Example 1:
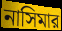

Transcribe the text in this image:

নাসিমার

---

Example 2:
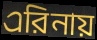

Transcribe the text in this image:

এরিনায়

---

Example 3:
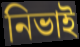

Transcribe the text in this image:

নিভাই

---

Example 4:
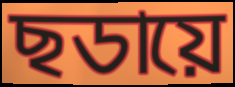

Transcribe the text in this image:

ছডায়ে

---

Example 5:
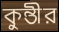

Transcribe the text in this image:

কুন্তীর